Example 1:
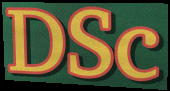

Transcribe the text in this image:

DSc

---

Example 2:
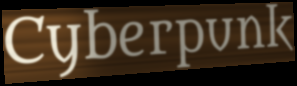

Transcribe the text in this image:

Cyberpunk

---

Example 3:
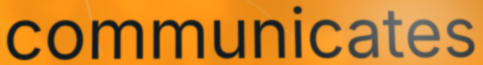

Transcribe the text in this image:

communicates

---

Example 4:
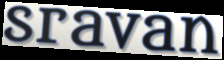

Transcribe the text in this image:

sravan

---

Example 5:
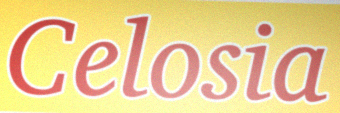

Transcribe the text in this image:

Celosia